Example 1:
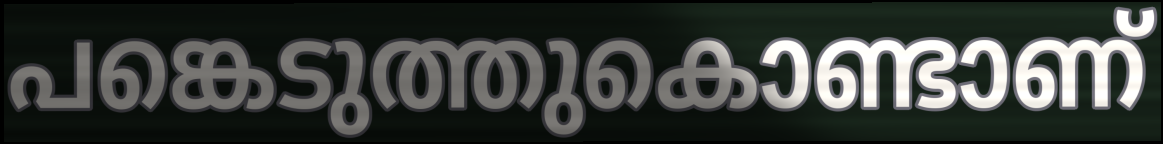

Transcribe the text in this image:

പങ്കെടുത്തുകൊണ്ടാണ്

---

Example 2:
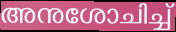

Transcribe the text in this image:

അനുശോചിച്ച്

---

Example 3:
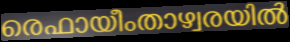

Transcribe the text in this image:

രെഫായീംതാഴ്വരയിൽ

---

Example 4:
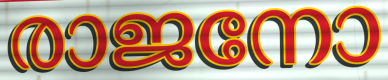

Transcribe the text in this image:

രാജനോ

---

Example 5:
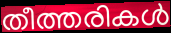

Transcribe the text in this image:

തീത്തരികൾ